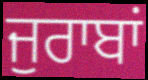
ਜੁਰਾਬਾਂ